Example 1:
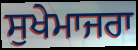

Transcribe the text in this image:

ਸੁਖੇਮਾਜਰਾ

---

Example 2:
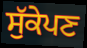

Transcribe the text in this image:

ਸੁੱਕੇਪਣ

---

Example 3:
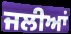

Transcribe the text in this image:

ਜਲੀਆਂ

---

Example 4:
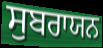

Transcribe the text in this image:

ਸੁਬਰਾਯਨ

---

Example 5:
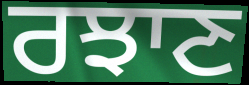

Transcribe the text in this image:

ਰਝਾਣ